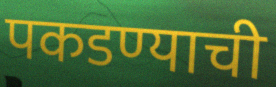
पकडण्याची